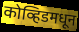
कोव्हिडमधून